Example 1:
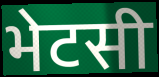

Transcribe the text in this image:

भेटसी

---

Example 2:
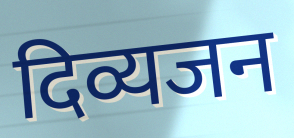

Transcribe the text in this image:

दिव्यजन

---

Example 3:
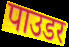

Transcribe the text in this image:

पाउडर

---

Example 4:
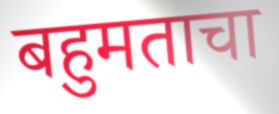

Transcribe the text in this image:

बहुमताचा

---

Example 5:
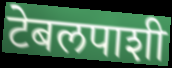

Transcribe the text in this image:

टेबलपाशी